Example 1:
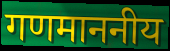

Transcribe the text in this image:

गणमाननीय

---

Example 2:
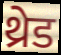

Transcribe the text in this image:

थ्रेड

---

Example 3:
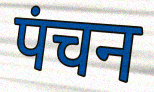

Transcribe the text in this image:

पंचन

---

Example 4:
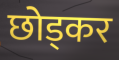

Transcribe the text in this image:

छोड्कर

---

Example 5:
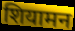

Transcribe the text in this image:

शियामन